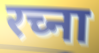
रच्ना